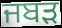
ਜਬੜ